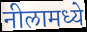
नीलामध्ये